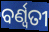
ବର୍ଣ୍ବତୀ